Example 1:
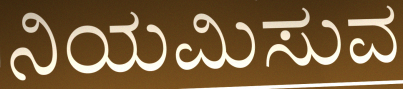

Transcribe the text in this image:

ನಿಯಮಿಸುವ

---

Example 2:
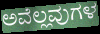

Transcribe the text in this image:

ಅವೆಲ್ಲವುಗಳ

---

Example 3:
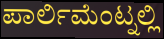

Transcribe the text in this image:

ಪಾರ್ಲಿಮೆಂಟ್ನಲ್ಲಿ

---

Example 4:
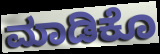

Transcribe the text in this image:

ಮಾಡಿಕೊ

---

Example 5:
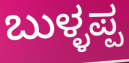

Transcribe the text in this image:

ಬುಳ್ಳಪ್ಪ